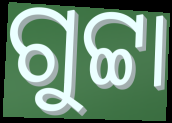
ଗୁଟ୍ଟା